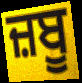
ਜ਼ਬੂ